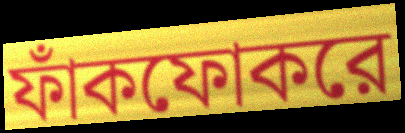
ফাঁকফোকরে